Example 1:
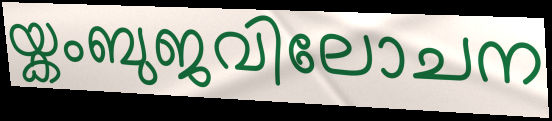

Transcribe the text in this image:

യ്കംബുജവിലോചന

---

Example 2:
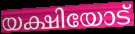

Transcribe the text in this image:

യക്ഷിയോട്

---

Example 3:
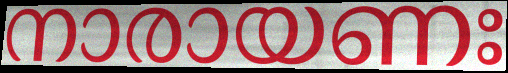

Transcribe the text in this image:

നാരായണഃ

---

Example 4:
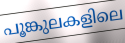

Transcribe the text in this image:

പൂങ്കുലകളിലെ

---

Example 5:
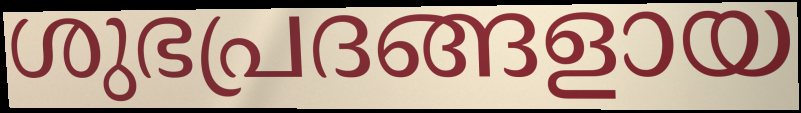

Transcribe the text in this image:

ശുഭപ്രദങ്ങളായ